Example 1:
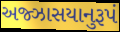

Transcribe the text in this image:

અજ્ઝાસયાનુરૂપં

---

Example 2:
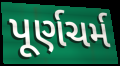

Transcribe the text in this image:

પૂર્ણચર્મ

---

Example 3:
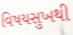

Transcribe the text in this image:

વિષયસુખથી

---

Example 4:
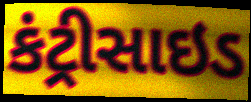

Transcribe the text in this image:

કંટ્રીસાઇડ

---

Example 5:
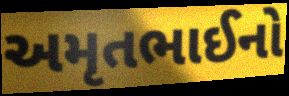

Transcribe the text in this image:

અમૃતભાઈનો